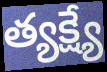
త్యక్ష్యే